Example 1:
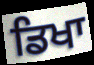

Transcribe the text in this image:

ਡਿਖਾ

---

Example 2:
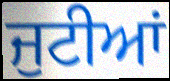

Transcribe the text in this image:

ਜੁਟੀਆਂ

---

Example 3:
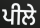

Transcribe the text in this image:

ਪੀਲੇ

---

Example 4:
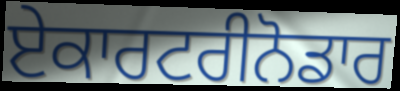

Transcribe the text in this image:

ਏਕਾਰਟਰੀਨੋਡਾਰ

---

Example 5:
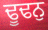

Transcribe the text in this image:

ਢੂਢਨੁ